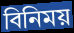
বিনিময়